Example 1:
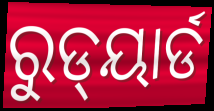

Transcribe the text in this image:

ରୁଡ୍‌ୟାର୍ଡ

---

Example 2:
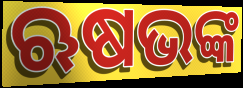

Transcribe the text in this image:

ଋଷଭଙ୍କ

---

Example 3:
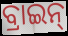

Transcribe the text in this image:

ବ୍ରାଇନ୍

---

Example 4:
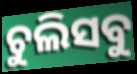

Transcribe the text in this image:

ଚୁଲିସବୁ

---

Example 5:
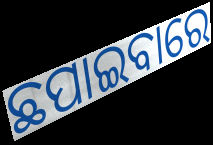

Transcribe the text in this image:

ଛପାଇବାରେ